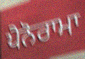
ਪੈਨੋਰਾਮਾ